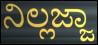
ನಿಲ್ಲಜ್ಜಾ